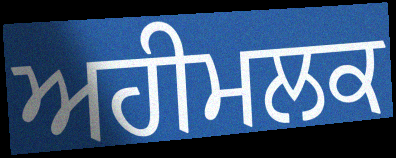
ਅਹੀਮਲਕ